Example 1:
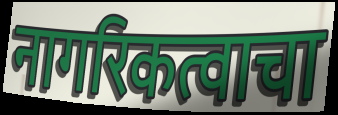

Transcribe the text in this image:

नागरिकत्वाचा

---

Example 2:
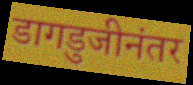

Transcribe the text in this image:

डागडुजीनंतर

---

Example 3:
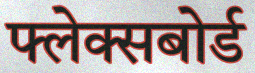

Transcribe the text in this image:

फ्लेक्सबोर्ड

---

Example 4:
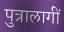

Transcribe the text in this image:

पुत्रालागीं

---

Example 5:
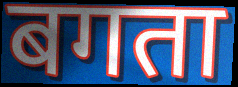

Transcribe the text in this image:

बगता